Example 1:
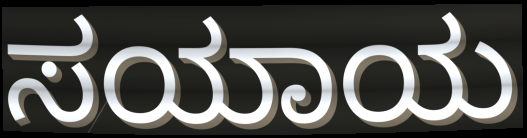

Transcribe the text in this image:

ಸಯಾಯ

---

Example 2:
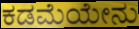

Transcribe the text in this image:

ಕಡಮೆಯೇನು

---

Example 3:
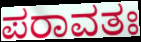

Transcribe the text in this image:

ಪರಾವತಃ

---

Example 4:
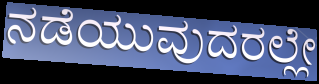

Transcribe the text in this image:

ನಡೆಯುವುದರಲ್ಲೇ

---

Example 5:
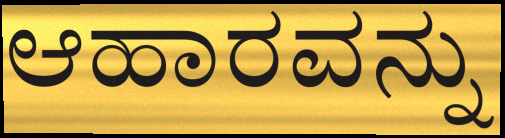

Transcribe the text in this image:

ಆಹಾರವನ್ನು